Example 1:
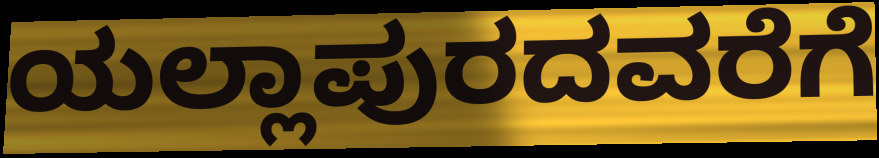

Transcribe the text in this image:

ಯಲ್ಲಾಪುರದವರೆಗೆ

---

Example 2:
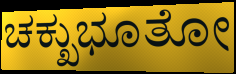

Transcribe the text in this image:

ಚಕ್ಖುಭೂತೋ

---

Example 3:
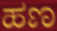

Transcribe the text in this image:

ಹಣ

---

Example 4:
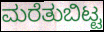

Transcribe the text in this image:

ಮರೆತುಬಿಟ್ಟ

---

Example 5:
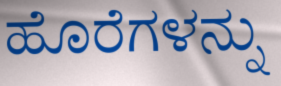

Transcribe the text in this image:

ಹೊರೆಗಳನ್ನು